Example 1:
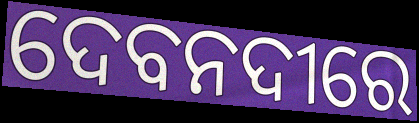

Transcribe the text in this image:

ଦେବନଦୀରେ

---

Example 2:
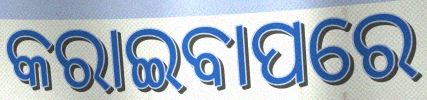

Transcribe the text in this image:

କରାଇବାପରେ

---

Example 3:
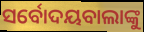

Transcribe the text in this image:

ସର୍ବୋଦୟବାଲାଙ୍କୁ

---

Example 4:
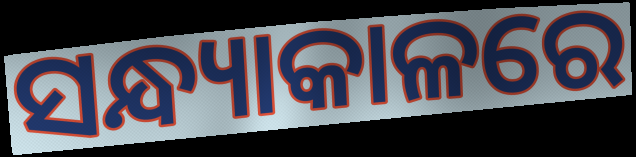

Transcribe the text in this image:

ସନ୍ଧ୍ୟାକାଳରେ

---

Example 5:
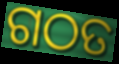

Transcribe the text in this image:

ଗଠତ